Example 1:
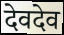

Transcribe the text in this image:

देवदेव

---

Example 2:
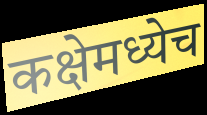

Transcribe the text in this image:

कक्षेमध्येच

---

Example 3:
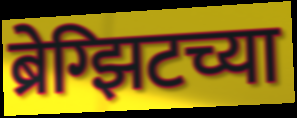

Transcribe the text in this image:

ब्रेग्झिटच्या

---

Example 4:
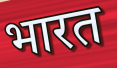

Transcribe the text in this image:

भारत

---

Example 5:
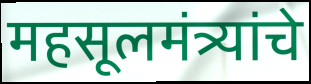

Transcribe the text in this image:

महसूलमंत्र्यांचे